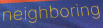
neighboring